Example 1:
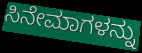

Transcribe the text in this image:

ಸಿನೇಮಾಗಳನ್ನು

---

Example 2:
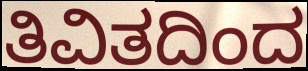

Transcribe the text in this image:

ತಿವಿತದಿಂದ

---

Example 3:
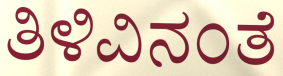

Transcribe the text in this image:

ತಿಳಿವಿನಂತೆ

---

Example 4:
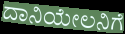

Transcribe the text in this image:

ದಾನಿಯೇಲನಿಗೆ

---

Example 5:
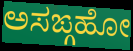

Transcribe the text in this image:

ಅಸಙ್ಗಹೋ